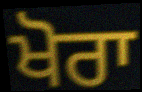
ਖੋਰਾ